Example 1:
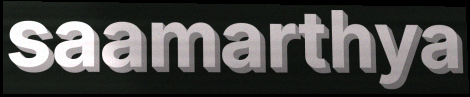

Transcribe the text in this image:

saamarthya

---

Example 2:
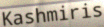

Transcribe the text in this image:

Kashmiris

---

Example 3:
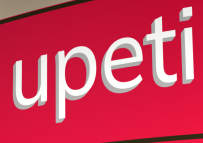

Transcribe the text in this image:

upeti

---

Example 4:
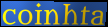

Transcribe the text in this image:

coinhta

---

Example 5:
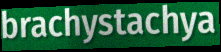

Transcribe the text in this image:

brachystachya